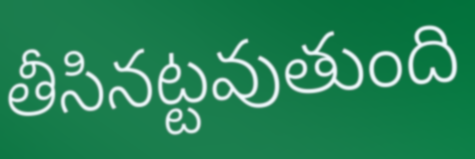
తీసినట్టవుతుంది